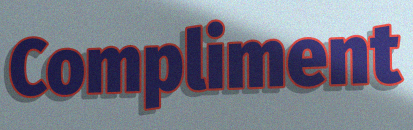
Compliment